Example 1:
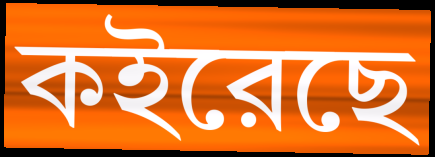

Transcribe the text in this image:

কইরেছে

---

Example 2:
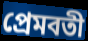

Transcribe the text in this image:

প্রেমবতী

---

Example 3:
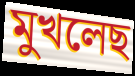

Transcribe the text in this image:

মুখলেছ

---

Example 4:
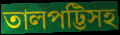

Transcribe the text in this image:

তালপট্টিসহ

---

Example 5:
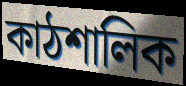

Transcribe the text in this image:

কাঠশালিক